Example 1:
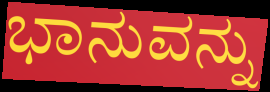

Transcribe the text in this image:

ಭಾನುವನ್ನು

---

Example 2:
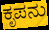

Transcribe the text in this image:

ಕೃಪನು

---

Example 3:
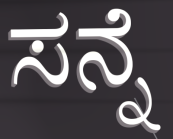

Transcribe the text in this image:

ಸನ್ನೆ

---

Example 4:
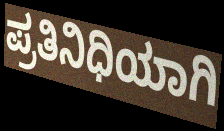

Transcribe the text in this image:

ಪ್ರತಿನಿಧಿಯಾಗಿ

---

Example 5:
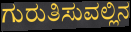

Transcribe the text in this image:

ಗುರುತಿಸುವಲ್ಲಿನ